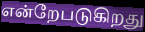
என்றேபடுகிறது